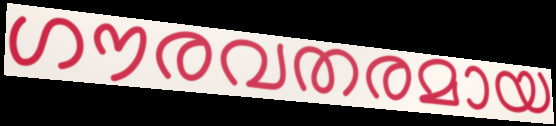
ഗൗരവതരമായ